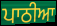
ਪਾਠੀਆ